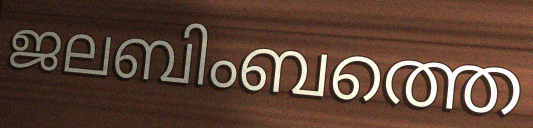
ജലബിംബത്തെ